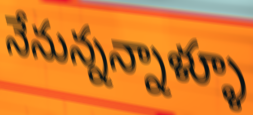
నేనున్నన్నాళ్ళూ